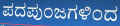
ಪದಪುಂಜಗಳಿಂದ